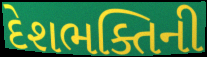
દેશભક્તિની